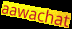
aawachat